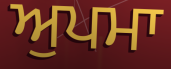
ਅੁਪਮਾ